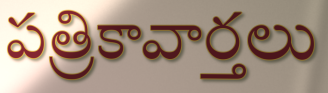
పత్రికావార్తలు